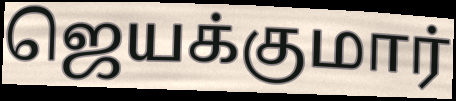
ஜெயக்குமார்